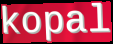
kopal